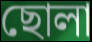
ছোলা